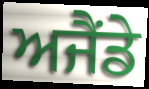
ਅਜੈਂਡੇ